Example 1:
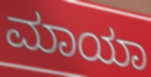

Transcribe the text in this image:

ಮಾಯಾ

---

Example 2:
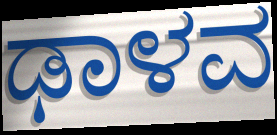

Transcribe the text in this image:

ಢಾಳವ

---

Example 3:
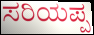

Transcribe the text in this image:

ಸರಿಯಪ್ಪ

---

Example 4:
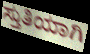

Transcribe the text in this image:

ಸ್ತುತಿಯಾಗಿ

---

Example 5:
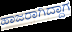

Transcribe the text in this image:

ಹಾಜರಾಗಿದ್ದಾಗ